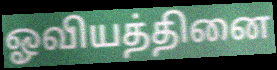
ஓவியத்தினை